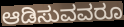
ಆಡಿಸುವವರೂ